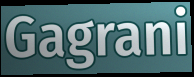
Gagrani